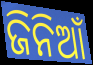
ଜିନିଆଁ